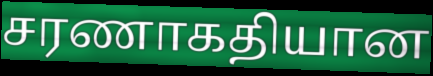
சரணாகதியான